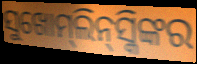
ସୁଖୋମ୍‌ଲିନ୍‌ସ୍କିଙ୍କର